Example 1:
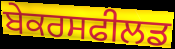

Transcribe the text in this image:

ਬੇਕਰਸਫੀਲਡ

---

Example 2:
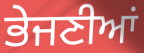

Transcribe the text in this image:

ਭੇਜਣੀਆਂ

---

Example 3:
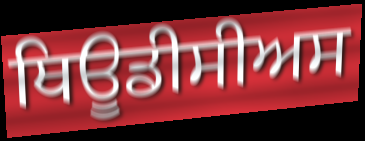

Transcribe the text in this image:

ਥਿਊਡੀਸੀਅਸ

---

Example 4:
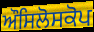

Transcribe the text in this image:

ਔਸਿਲੋਸਕੋਪ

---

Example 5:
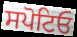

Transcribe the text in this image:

ਸਪੋਟਿਓ